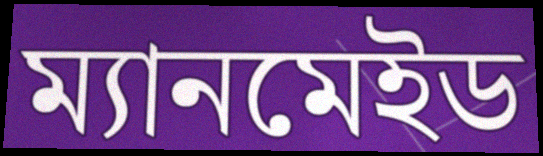
ম্যানমেইড